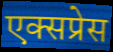
एक्सप्रेस